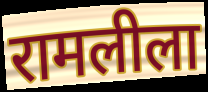
रामलीला